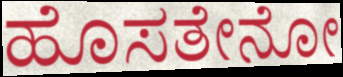
ಹೊಸತೇನೋ